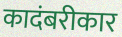
कादंबरीकार